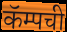
कॅम्पची